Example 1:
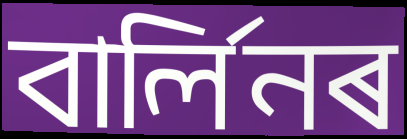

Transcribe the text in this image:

বাৰ্লিনৰ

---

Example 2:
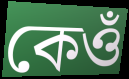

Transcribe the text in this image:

কেওঁ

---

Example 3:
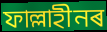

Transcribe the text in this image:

ফাল্লাহীনৰ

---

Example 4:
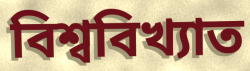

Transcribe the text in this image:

বিশ্ববিখ্যাত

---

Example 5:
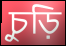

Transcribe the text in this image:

চুড়ি